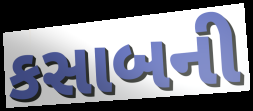
કસાબની